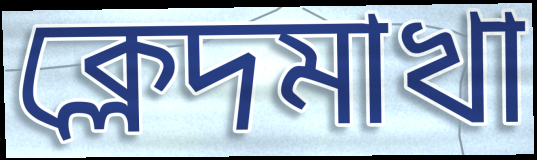
ক্লেদমাখা